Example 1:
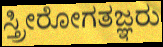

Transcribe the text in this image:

ಸ್ತ್ರೀರೋಗತಜ್ಞರು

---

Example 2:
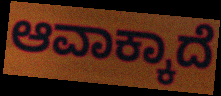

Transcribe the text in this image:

ಆವಾಕ್ಕಾದೆ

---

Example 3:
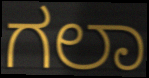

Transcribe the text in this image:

ಗಲಾ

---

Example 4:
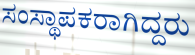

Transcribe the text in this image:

ಸಂಸ್ಥಾಪಕರಾಗಿದ್ದರು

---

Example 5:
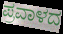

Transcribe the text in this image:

ಪ್ರವಾಳದ